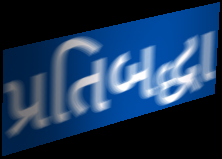
પ્રતિબદ્ધા